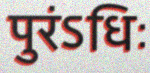
पुरंऽधिः